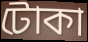
টোকা